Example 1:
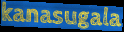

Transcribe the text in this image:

kanasugala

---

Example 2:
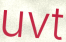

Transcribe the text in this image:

uvt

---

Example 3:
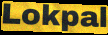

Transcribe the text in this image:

Lokpal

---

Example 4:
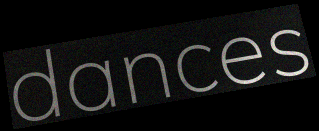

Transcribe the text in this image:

dances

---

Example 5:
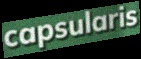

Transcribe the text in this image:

capsularis